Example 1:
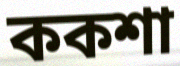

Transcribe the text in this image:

ককশা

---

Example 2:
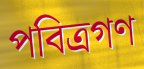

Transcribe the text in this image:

পবিত্রগণ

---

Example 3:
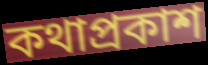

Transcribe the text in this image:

কথাপ্রকাশ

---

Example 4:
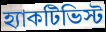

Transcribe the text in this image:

হ্যাকটিভিস্ট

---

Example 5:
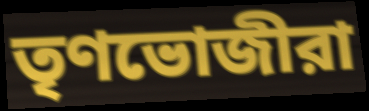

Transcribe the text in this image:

তৃণভোজীরা